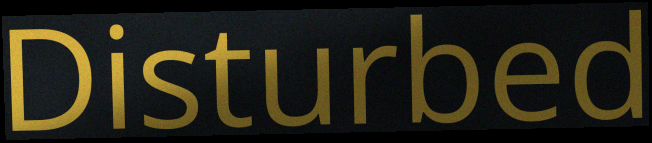
Disturbed